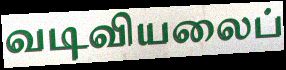
வடிவியலைப்